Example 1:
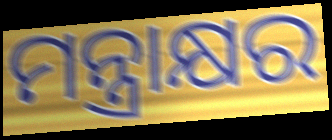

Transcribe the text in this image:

ମନ୍ତ୍ରାକ୍ଷର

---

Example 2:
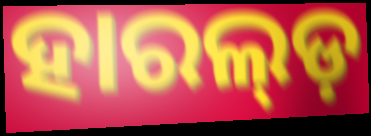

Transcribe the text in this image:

ହାରଲ୍ଡ଼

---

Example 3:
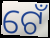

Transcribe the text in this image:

ଟେଁ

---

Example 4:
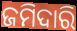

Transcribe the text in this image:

ଜମିଦାରି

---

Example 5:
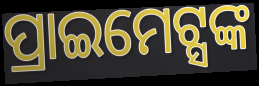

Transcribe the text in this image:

ପ୍ରାଇମେଟ୍ସଙ୍କ